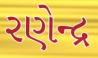
રણેન્દ્ર